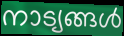
നാട്യങ്ങൾ